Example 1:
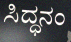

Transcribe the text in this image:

ಸಿದ್ಧನಂ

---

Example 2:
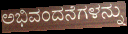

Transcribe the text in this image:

ಅಭಿವಂದನೆಗಳನ್ನು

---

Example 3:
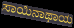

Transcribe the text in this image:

ಸಾಯಿನಾಥಾಯ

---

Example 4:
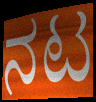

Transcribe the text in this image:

ನಟ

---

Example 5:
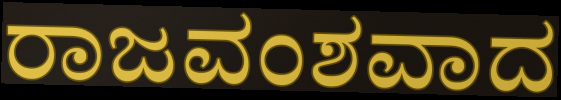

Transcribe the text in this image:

ರಾಜವಂಶವಾದ